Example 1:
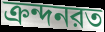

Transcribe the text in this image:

ক্রন্দনরত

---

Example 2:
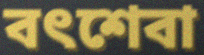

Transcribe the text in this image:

বৎশেবা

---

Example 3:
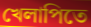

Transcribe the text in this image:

খেলাপিতে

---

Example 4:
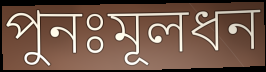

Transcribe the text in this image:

পুনঃমূলধন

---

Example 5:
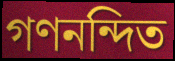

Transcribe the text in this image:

গণনন্দিত